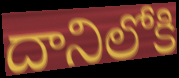
దానిలోకి